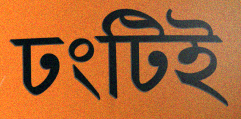
ঢংটিই